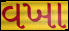
વખા